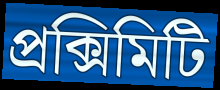
প্রক্সিমিটি